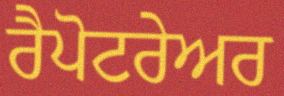
ਰੈਪੋਟਰੇਅਰ